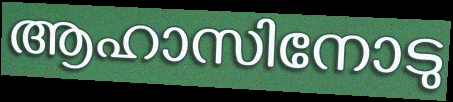
ആഹാസിനോടു